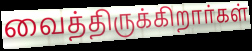
வைத்திருக்கிறார்கள்